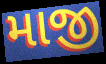
માજી